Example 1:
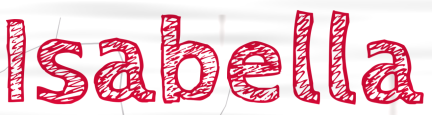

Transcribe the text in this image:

Isabella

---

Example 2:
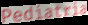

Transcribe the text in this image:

Pediatria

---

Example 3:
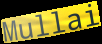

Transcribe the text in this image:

Mullai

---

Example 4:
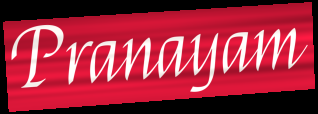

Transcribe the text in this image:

Pranayam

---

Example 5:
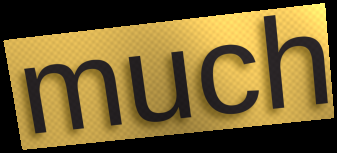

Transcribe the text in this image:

much